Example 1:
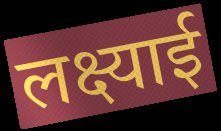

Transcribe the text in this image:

लक्ष्याई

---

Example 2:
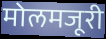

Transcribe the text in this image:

मोलमजूरी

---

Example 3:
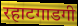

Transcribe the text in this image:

रहाटगाडगी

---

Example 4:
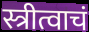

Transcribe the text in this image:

स्त्रीत्वाचं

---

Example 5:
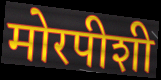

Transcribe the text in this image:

मोरपीशी